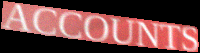
ACCOUNTS